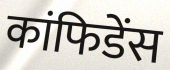
कांफिडेंस